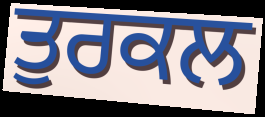
ਤੁਰਕਲ